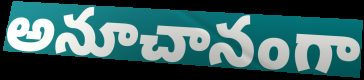
అనూచానంగా